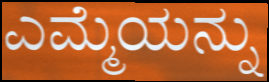
ಎಮ್ಮೆಯನ್ನು